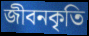
জীবনকৃতি